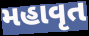
મહાવૃત